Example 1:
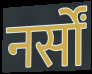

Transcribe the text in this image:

नर्सों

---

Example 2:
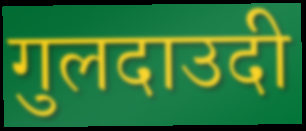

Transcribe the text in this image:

गुलदाउदी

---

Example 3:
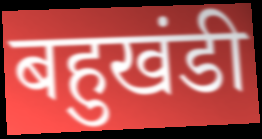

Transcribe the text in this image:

बहुखंडी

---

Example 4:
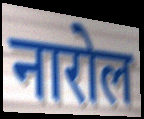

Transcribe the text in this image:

नारोल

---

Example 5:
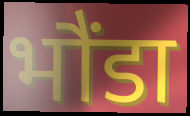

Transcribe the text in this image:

भौंडा